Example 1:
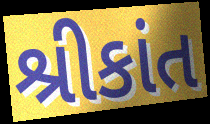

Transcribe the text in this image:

શ્રીકાંત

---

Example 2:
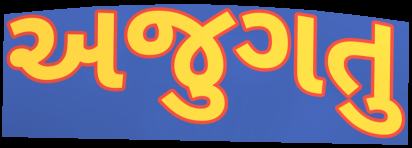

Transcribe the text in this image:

અજુગતુ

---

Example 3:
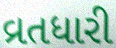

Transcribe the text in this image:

વ્રતધારી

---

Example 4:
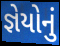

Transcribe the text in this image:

જ્ઞેયોનું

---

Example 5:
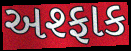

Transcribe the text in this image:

અશ્ફાક